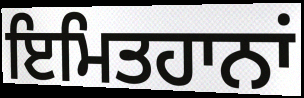
ਇਮਿਤਹਾਨਾਂ